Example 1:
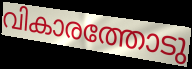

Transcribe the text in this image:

വികാരത്തോടു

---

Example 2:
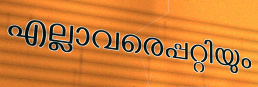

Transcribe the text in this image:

എല്ലാവരെപ്പറ്റിയും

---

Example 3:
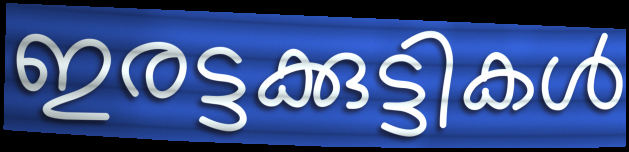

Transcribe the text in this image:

ഇരട്ടക്കുട്ടികൾ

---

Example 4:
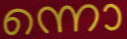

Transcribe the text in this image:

ന്നൊ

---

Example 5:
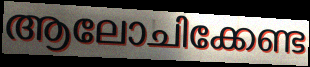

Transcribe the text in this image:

ആലോചിക്കേണ്ട